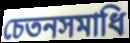
চেতনসমাধি